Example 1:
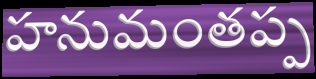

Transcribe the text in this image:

హనుమంతప్ప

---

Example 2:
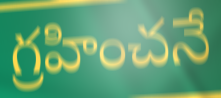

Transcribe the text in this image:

గ్రహించనే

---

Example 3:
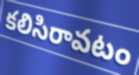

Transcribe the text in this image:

కలిసిరావటం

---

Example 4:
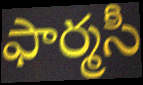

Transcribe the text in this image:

ఫార్మసీ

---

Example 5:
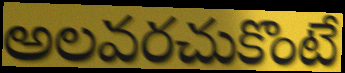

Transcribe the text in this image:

అలవరచుకొంటే